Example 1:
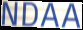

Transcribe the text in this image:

NDAA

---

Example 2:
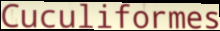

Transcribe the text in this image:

Cuculiformes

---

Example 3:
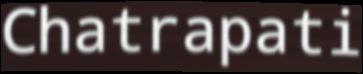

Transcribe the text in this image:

Chatrapati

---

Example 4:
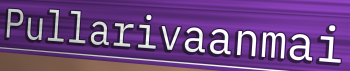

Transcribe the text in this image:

Pullarivaanmai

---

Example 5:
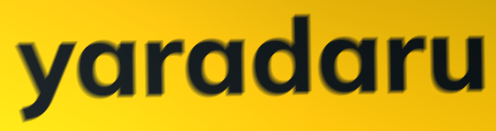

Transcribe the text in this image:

yaradaru